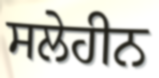
ਸਲੇਹੀਨ